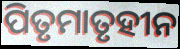
ପିତୃମାତୃହୀନ